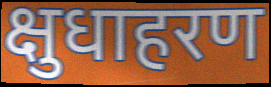
क्षुधाहरण